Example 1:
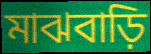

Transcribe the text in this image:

মাঝবাড়ি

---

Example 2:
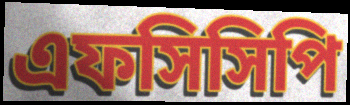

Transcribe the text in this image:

এফসিসিপি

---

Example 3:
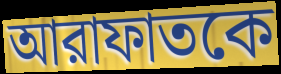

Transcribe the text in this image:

আরাফাতকে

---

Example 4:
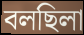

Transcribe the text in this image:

বলছিলা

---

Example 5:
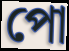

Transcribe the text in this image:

পো